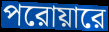
পরোয়ারে